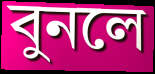
বুনলে